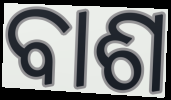
ବାଶ